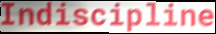
Indiscipline